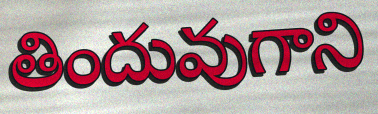
తిందువుగాని